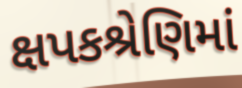
ક્ષપકશ્રેણિમાં